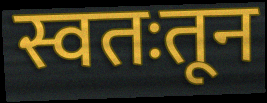
स्वतःतून